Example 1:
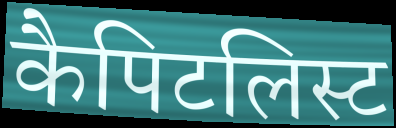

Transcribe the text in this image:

कैपिटलिस्ट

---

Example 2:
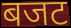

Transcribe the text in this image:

बजट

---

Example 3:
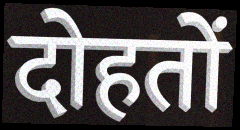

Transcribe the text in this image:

दोहतों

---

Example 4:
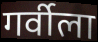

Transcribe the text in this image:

गर्वीला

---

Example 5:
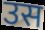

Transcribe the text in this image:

उस